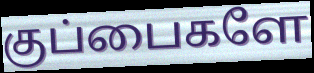
குப்பைகளே